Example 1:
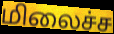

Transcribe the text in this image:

மிலைச்ச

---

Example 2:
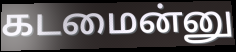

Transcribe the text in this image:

கடமைன்னு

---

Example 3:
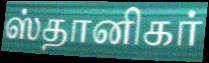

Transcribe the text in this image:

ஸ்தானிகர்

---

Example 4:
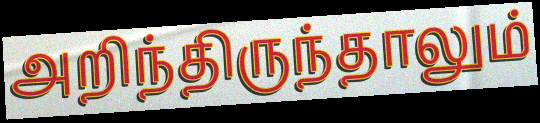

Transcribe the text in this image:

அறிந்திருந்தாலும்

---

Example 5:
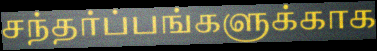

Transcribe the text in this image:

சந்தர்ப்பங்களுக்காக